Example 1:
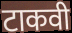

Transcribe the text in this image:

टाकवी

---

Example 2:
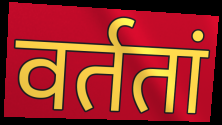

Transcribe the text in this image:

वर्ततां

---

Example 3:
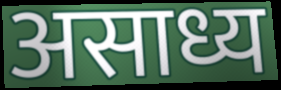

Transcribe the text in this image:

असाध्य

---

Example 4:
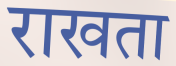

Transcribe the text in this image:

राखता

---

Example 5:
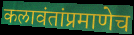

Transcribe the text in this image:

कलावंतांप्रमाणेच